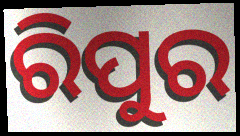
ରିପୁର